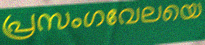
പ്രസംഗവേലയെ